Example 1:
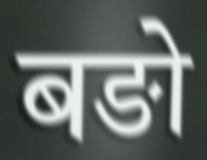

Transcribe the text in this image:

बङो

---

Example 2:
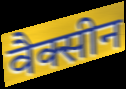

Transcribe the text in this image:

वैक्सीन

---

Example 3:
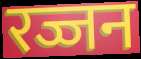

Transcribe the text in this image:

रज्जन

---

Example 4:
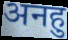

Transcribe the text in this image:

अनहु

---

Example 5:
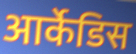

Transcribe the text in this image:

आर्केडिस